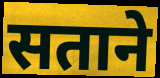
सताने